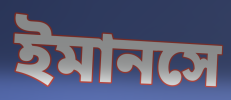
ইমানসে